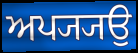
ਅਪ੍ਯ੍ਯਉ